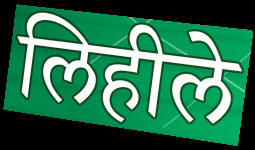
लिहीले